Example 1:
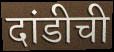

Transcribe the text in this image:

दांडीची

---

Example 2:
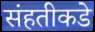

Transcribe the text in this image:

संहतीकडे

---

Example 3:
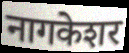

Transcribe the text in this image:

नागकेशर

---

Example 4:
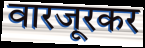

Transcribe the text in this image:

वारजूरकर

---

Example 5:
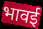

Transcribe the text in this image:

भावई